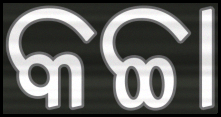
କଚ୍ଚା